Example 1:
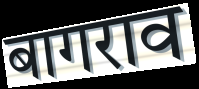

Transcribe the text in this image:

बागराव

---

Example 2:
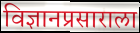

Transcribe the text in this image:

विज्ञानप्रसाराला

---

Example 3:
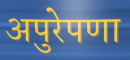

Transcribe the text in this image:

अपुरेपणा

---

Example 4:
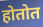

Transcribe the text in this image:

होतोत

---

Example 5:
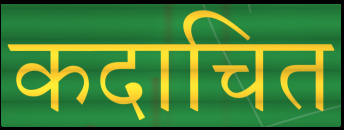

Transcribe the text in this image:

कदाचित